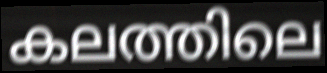
കലത്തിലെ